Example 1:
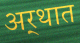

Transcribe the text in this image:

अर्थात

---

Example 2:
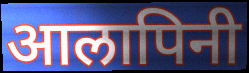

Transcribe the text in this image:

आलापिनी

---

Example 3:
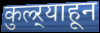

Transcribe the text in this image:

कुल्र्याहून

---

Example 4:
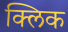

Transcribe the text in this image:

क्लिक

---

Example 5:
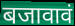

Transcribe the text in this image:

बजावावं